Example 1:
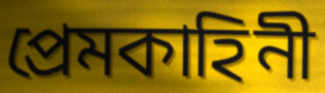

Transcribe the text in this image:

প্রেমকাহিনী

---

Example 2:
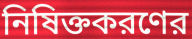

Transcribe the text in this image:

নিষিক্তকরণের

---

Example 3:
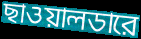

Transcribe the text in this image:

ছাওয়ালডারে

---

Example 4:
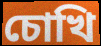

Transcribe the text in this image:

চোখি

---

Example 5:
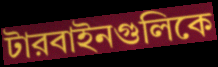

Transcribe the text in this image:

টারবাইনগুলিকে